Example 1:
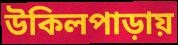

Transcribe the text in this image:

উকিলপাড়ায়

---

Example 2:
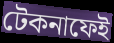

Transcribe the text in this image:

টেকনাফেই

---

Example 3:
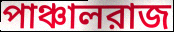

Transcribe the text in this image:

পাঞ্চালরাজ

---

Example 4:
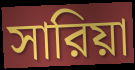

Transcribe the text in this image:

সারিয়া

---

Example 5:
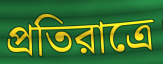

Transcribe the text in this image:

প্রতিরাত্রে